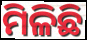
ମିଳିଛି